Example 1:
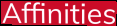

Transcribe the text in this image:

Affinities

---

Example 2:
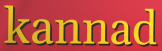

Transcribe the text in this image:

kannad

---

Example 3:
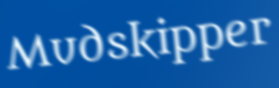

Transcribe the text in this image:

Mudskipper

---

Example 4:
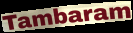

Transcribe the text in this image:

Tambaram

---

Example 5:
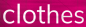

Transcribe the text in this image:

clothes